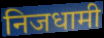
निजधामी